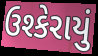
ઉશ્કેરાયું